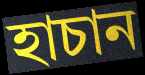
হাচান